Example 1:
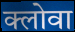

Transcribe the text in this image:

क्लोवा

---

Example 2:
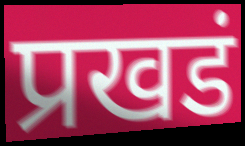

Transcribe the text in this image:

प्रखडं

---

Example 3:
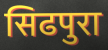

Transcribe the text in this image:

सिढपुरा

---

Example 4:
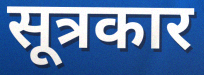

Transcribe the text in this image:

सूत्रकार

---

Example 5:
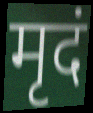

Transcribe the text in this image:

मृदं